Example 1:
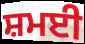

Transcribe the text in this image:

ਸ਼ਮਈ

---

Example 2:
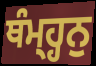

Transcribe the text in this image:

ਥੰਮ੍ਹ੍ਹਨੁ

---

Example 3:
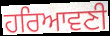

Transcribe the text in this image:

ਹਰਿਆਵਣੀ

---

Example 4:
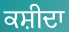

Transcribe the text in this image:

ਕਸ਼ੀਦਾ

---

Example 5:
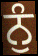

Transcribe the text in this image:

ਨੁੰ